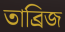
তাব্রিজ